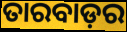
ତାରବାଡ଼ର